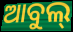
ଆବୁଲ୍